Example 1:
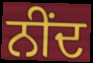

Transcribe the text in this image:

ਨੀਂਦ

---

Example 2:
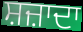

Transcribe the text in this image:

ਸ਼ਜ਼ਾਦਾ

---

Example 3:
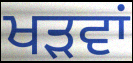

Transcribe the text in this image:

ਖੜਵਾਂ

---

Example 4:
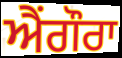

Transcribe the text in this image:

ਐਂਗੌਰਾ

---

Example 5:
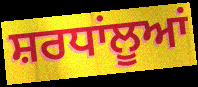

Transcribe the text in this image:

ਸ਼ਰਧਾਂਲੂਆਂ